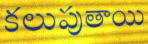
కలుపుతాయి